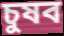
চুষব